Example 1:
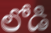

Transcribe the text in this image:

లోడి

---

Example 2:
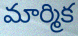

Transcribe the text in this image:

మార్మిక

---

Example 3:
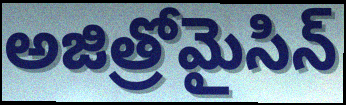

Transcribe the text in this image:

అజిత్రోమైసిన్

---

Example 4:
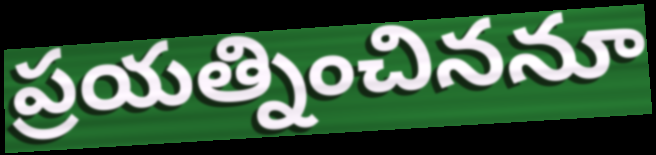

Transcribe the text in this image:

ప్రయత్నించిననూ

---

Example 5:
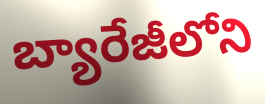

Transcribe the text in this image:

బ్యారేజీలోని